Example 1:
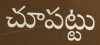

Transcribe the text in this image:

చూపట్టు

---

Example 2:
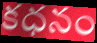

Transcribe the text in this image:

కధనం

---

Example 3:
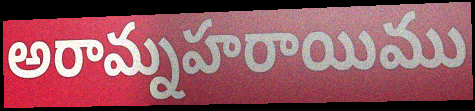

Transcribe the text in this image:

అరామ్నహరాయిము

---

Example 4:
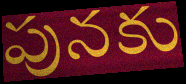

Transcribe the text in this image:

పునకు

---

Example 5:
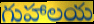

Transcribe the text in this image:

గుహాలయ